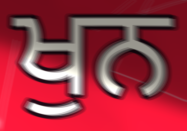
ਖੁਨ